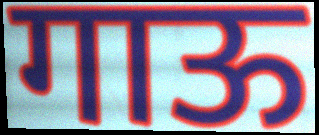
गाऊ